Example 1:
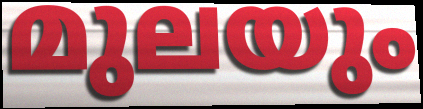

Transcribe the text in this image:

മുലയും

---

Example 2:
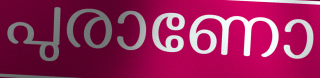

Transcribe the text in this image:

പുരാണോ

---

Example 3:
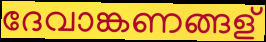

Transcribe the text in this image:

ദേവാങ്കണങ്ങള്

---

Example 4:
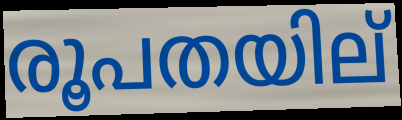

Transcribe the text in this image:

രൂപതയില്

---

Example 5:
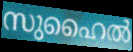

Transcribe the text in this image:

സുഹൈൽ